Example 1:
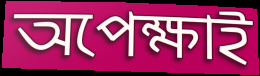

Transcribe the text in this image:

অপেক্ষাই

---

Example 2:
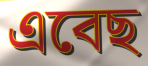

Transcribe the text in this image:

এবেছ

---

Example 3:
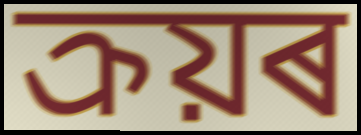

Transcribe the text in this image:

ক্ৰয়ৰ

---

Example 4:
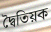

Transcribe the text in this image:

দ্বৈতিয়ক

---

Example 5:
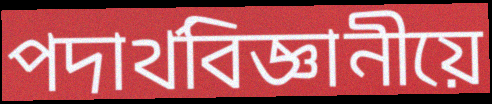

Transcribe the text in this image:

পদাৰ্থবিজ্ঞানীয়ে